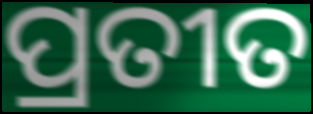
ପ୍ରତୀତ